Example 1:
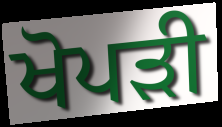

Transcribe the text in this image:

ਖੋਪੜੀ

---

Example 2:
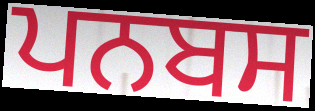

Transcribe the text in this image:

ਪਨਬਸ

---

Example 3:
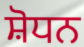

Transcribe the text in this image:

ਸ਼ੋਧਨ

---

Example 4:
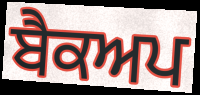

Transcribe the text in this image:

ਬੈਕਅਪ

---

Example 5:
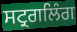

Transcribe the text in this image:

ਸਟ੍ਰਗਲਿੰਗ